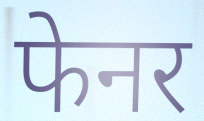
फेनर